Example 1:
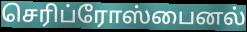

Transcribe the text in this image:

செரிப்ரோஸ்பைனல்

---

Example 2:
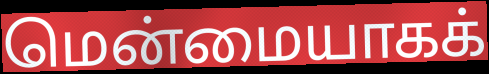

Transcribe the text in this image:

மென்மையாகக்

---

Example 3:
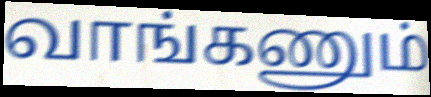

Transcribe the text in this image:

வாங்கணும்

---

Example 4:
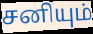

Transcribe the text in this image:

சனியும்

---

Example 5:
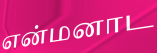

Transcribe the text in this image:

என்மனாட